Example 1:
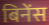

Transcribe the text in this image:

बिनेंस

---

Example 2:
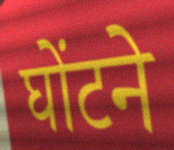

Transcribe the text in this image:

घोंटने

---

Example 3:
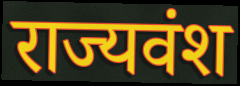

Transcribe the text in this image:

राज्यवंश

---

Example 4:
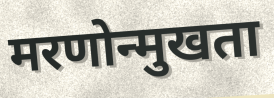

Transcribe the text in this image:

मरणोन्मुखता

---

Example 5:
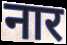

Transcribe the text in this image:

नार